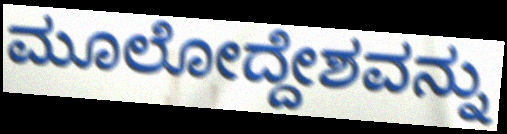
ಮೂಲೋದ್ದೇಶವನ್ನು